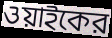
ওয়াইকের